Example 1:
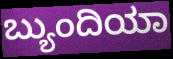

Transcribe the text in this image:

ಬ್ಯುಂದಿಯಾ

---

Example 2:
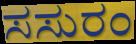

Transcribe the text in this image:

ಸಸುರಂ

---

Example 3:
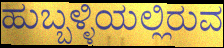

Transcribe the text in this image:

ಹುಬ್ಬಳ್ಳಿಯಲ್ಲಿರುವ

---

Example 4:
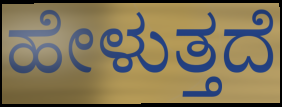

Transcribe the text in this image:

ಹೇಳುತ್ತದೆ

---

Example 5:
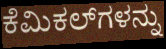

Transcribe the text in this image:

ಕೆಮಿಕಲ್‌ಗಳನ್ನು